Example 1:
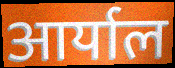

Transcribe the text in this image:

आर्याल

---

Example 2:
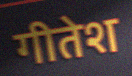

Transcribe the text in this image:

गीतेश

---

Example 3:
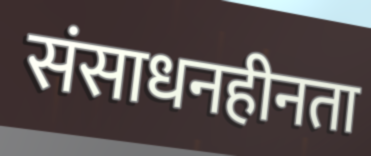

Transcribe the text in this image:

संसाधनहीनता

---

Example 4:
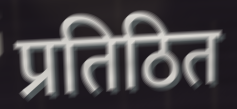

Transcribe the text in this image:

प्रतिठित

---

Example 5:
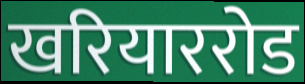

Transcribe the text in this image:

खरियाररोड